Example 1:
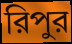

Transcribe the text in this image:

রিপুর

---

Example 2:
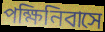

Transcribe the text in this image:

পক্ষিনিবাসে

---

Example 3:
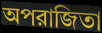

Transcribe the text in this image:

অপরাজিতা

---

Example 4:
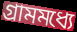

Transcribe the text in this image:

গ্রামমধ্যে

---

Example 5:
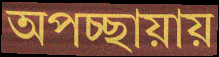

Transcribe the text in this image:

অপচ্ছায়ায়